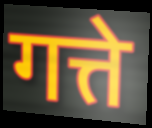
गत्ते